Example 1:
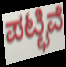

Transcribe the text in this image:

ಪಟ್ಟಿವೆ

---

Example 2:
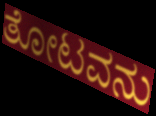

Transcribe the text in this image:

ತೋಟವನು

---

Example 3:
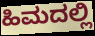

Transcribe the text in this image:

ಹಿಮದಲ್ಲಿ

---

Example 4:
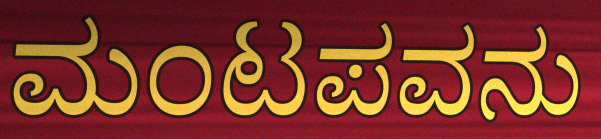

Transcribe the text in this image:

ಮಂಟಪವನು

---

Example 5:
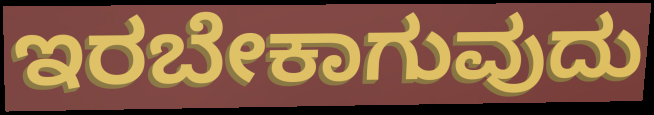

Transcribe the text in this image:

ಇರಬೇಕಾಗುವುದು